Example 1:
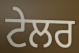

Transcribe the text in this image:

ਟੇਲਰ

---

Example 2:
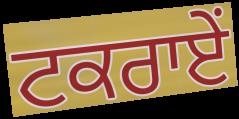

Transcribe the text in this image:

ਟਕਰਾਏਂ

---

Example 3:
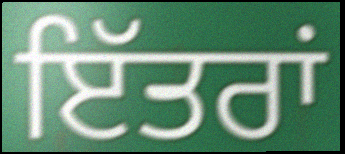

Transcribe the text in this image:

ਇੱਤਰਾਂ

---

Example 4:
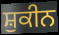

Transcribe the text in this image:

ਸ਼ੁਕੀਨ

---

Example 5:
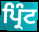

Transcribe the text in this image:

ਪ੍ਰਿੰਟ